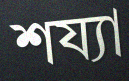
শয্যা